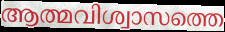
ആത്മവിശ്വാസത്തെ